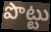
పొట్టు